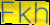
Fkh